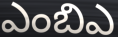
ఎంబిఎ